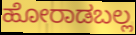
ಹೋರಾಡಬಲ್ಲ